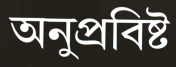
অনুপ্রবিষ্ট